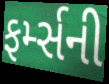
ફર્મ્સની